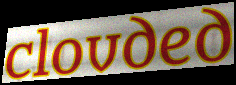
clouded